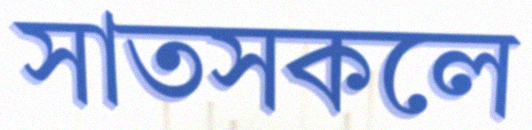
সাতসকলে